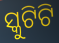
ସ୍କୁଟିଟି